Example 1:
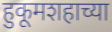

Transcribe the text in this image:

हुकूमशहाच्या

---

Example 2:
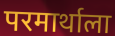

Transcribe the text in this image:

परमार्थाला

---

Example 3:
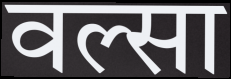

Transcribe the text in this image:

वल्सा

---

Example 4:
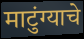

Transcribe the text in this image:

माटुंग्याचे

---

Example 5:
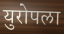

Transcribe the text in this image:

युरोपला